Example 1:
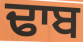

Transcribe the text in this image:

ਢਾਬ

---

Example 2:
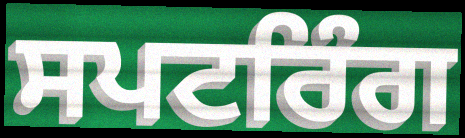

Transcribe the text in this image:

ਸਪਟਰਿੰਗ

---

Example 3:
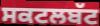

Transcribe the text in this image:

ਸਕਟਲਬੱਟ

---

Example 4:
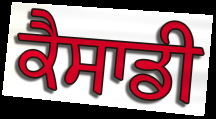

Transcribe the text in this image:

ਕੈਸਾਡੀ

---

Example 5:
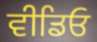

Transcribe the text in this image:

ਵੀਡਿਓ